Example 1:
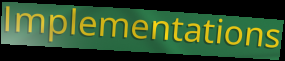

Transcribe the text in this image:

Implementations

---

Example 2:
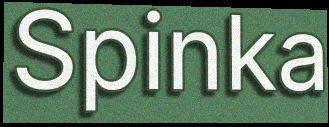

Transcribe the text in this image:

Spinka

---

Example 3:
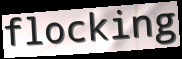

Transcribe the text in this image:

flocking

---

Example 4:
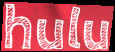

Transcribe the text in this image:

hulu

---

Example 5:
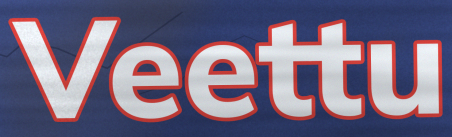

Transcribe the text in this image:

Veettu